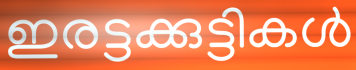
ഇരട്ടക്കുട്ടികൾ